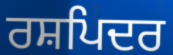
ਰਸ਼ਪਿਦਰ